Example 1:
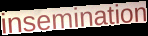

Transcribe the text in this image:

insemination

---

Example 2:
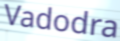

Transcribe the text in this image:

Vadodra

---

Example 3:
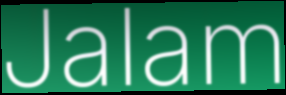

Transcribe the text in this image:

Jalam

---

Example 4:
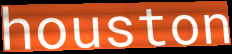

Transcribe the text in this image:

houston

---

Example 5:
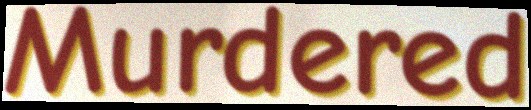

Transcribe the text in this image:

Murdered